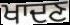
ਖਾਦਣ